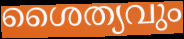
ശൈത്യവും